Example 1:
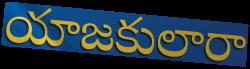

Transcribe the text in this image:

యాజకులారా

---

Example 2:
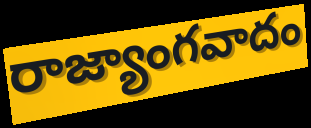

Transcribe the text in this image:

రాజ్యాంగవాదం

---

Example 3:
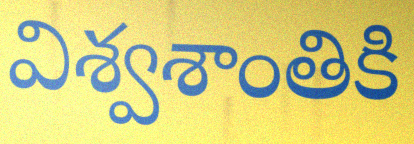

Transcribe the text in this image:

విశ్వశాంతికి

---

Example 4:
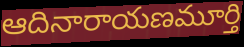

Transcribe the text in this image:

ఆదినారాయణమూర్తి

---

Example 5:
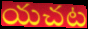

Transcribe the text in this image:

యచట